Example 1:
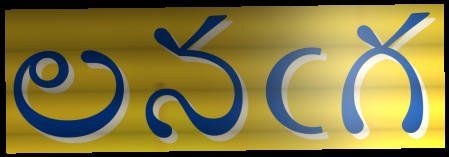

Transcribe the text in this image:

లనఁగ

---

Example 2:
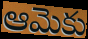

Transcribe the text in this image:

ఆమెకు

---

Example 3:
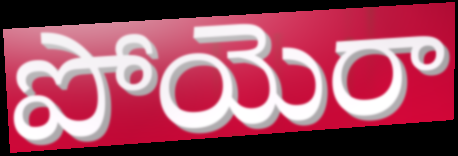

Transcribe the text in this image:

పోయెరా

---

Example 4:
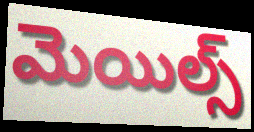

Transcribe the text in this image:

మెయిల్స్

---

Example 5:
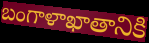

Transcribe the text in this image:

బంగాళాఖాతానికి